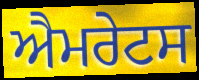
ਐਮਰੇਟਸ